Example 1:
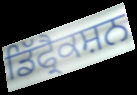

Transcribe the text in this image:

ਡਿੱਫ੍ਰੈਕਸ਼ਨ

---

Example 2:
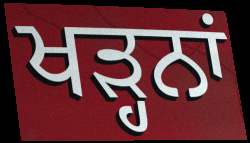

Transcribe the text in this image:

ਖੜ੍ਹਨਾਂ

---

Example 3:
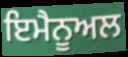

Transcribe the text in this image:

ਇਮੈਨੂਅਲ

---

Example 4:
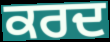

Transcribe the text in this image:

ਕਰਦ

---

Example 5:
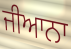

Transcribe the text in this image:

ਜੀਆਨਾ